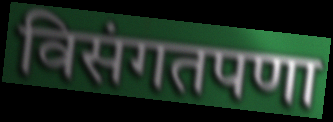
विसंगतपणा